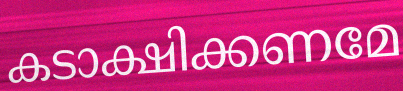
കടാക്ഷിക്കണമേ